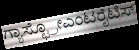
ಗ್ಯಾಸ್ಟ್ರೋಎಂಟರೈಟಿಸ್